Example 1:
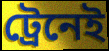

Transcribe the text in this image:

ট্রেনেই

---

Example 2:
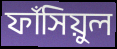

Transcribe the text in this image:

ফাঁসিয়ুল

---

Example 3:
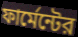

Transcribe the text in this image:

ফার্মেন্টের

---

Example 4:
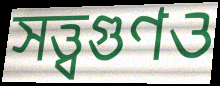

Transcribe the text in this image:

সত্ত্বগুণও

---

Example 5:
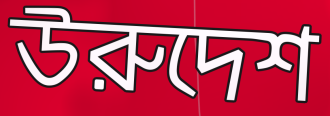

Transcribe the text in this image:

উরুদেশ